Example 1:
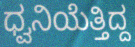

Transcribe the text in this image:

ಧ್ವನಿಯೆತ್ತಿದ್ದ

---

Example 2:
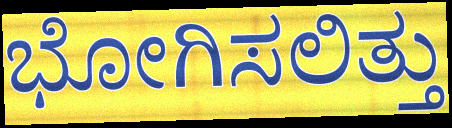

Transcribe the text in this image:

ಭೋಗಿಸಲಿತ್ತು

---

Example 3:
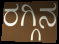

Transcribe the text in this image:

ರಗ್ಗಿನ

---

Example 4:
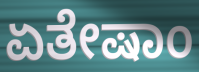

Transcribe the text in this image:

ಏತೇಷಾಂ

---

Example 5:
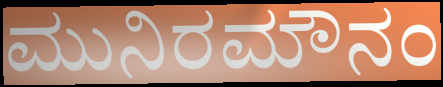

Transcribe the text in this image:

ಮುನಿರಮೌನಂ